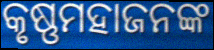
କୃଷ୍ଣମହାଜନଙ୍କ